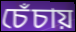
চেঁচায়